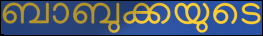
ബാബുക്കയുടെ